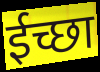
ईच्छा